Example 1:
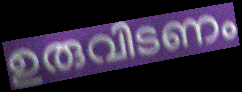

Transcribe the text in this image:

ഉരുവിടണം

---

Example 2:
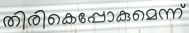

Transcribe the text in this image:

തിരികെപ്പോകുമെന്ന്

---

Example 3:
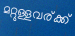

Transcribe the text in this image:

മറ്റുള്ളവര്ക്ക്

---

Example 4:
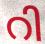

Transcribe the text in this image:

റി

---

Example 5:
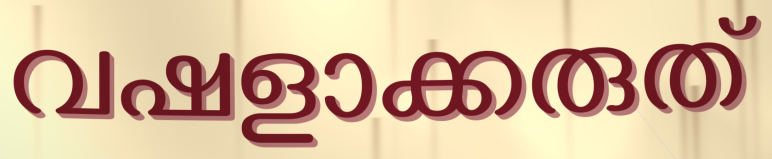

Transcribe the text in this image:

വഷളാക്കരുത്